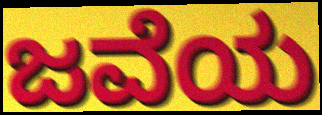
ಜವೆಯ